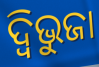
ଦ୍ଵିଭୁଜା